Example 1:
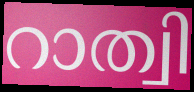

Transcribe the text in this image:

റാത്വി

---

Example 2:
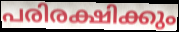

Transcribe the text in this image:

പരിരക്ഷിക്കും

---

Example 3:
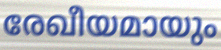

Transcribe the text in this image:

രേഖീയമായും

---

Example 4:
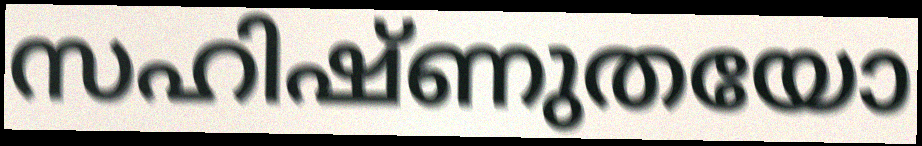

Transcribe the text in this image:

സഹിഷ്ണുതയോ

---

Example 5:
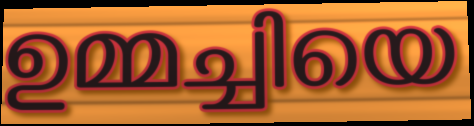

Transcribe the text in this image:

ഉമ്മച്ചിയെ